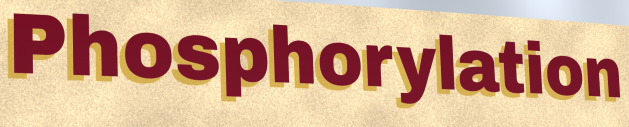
Phosphorylation